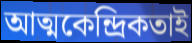
আত্মকেন্দ্রিকতাই